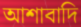
আশাবাদি